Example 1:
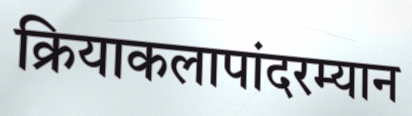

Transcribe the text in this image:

क्रियाकलापांदरम्यान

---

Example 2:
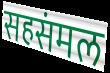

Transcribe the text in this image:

सहसंमल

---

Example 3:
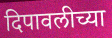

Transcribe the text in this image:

दिपावलीच्या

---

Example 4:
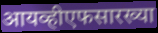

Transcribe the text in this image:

आयव्हीएफसारख्या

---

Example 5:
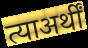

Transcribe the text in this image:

त्याअर्थीं